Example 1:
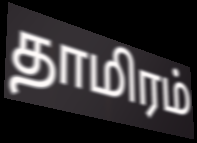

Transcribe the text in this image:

தாமிரம்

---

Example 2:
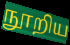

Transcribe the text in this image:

நூறிய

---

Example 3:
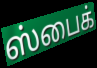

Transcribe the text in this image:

ஸ்பைக்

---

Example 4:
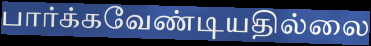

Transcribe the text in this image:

பார்க்கவேண்டியதில்லை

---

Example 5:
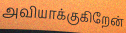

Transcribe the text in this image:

அவியாக்குகிறேன்